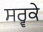
ਸਰ੍ਵਕੇ